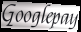
Googlepay